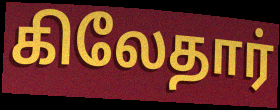
கிலேதார்